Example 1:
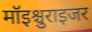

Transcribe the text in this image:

मॉइश्चुराइजर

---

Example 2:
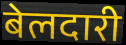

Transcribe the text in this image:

बेलदारी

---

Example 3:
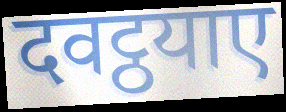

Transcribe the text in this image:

दवट्ठयाए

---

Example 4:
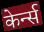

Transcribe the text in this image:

केर्न्स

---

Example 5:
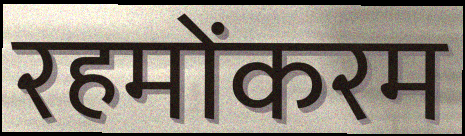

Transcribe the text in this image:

रहमोंकरम